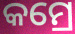
କମ୍ରେ